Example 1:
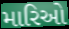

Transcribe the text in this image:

મારિઓ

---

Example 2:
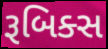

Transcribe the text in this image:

રૂબિક્સ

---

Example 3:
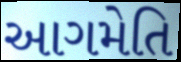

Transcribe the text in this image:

આગમેતિ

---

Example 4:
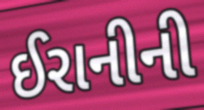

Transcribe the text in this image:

ઈરાનીની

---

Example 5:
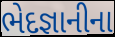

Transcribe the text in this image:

ભેદજ્ઞાનીના